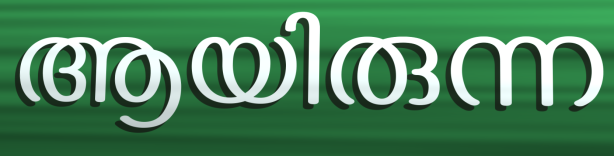
ആയിരുന്ന